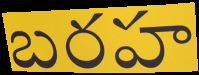
బరహ